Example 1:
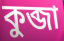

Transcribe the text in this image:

কুব্জা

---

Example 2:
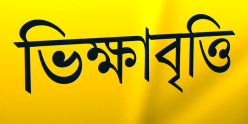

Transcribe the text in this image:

ভিক্ষাবৃত্তি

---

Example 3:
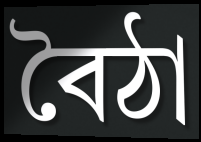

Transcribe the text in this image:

বৈঠা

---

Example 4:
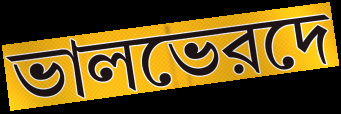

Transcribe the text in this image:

ভালভেরদে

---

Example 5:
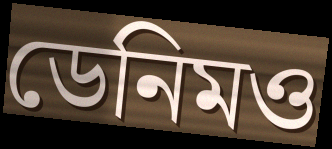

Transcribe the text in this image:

ডেনিমও